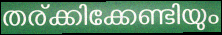
തര്ക്കിക്കേണ്ടിയും